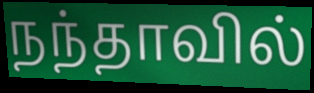
நந்தாவில்